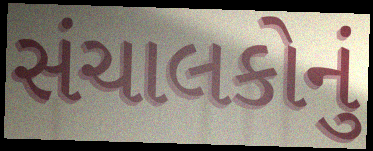
સંચાલકોનું